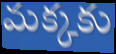
మక్కకు